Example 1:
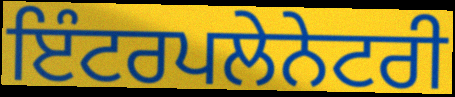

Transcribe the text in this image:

ਇੰਟਰਪਲੇਨੇਟਰੀ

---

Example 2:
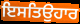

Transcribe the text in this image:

ਇਸਤਿਉਹਾਰ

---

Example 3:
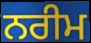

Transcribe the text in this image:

ਨਰੀਮ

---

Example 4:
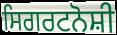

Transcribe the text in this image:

ਸਿਗਰਟਨੋਸ਼ੀ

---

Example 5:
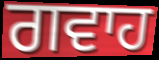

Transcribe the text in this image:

ਗਵਾਹ